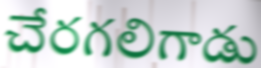
చేరగలిగాడు